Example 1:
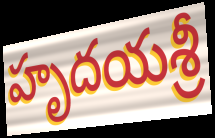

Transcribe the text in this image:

హృదయశ్రీ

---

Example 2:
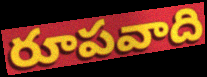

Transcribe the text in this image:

రూపవాది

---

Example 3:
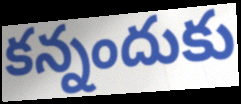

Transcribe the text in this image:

కన్నందుకు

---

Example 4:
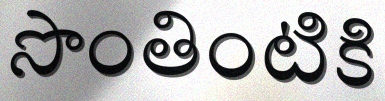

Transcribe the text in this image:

సొంతింటికి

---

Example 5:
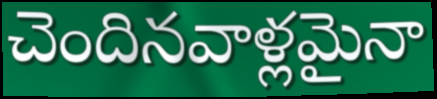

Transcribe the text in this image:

చెందినవాళ్లమైనా